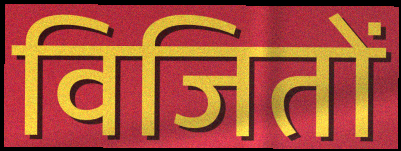
विजितों